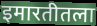
इमारतीतला